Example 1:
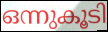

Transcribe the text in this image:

ഒന്നുകൂടി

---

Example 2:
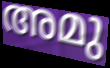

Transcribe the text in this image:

അമു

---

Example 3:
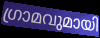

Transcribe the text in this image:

ഗ്രാമവുമായി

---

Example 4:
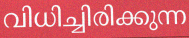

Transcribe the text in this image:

വിധിച്ചിരിക്കുന്ന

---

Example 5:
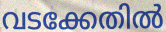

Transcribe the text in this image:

വടക്കേതിൽ